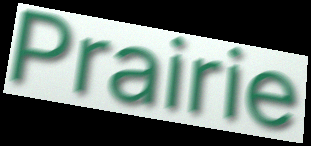
Prairie